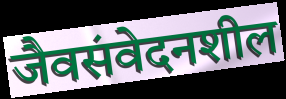
जैवसंवेदनशील